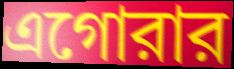
এগোরার